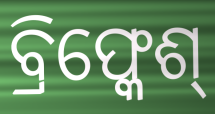
ବ୍ରିଫ୍କେଶ୍